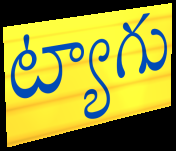
ట్యాగు